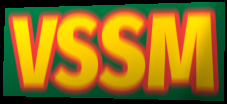
VSSM